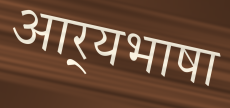
आर्यभाषा